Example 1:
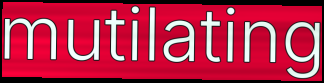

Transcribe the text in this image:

mutilating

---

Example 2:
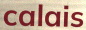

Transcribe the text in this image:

calais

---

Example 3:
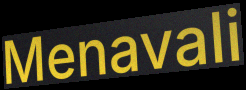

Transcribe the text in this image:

Menavali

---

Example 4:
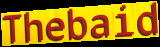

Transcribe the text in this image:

Thebaid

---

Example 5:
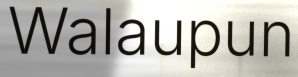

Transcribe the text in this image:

Walaupun